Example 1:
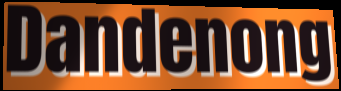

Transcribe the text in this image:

Dandenong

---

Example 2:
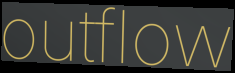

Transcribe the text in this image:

outflow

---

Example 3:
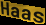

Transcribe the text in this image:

Haas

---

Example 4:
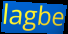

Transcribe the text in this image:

lagbe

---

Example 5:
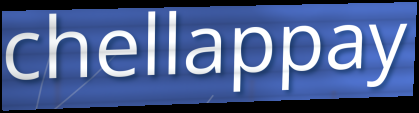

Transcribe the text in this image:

chellappay